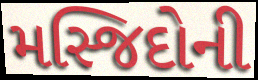
મસ્જિદોની